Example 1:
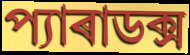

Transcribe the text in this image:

প্যাৰাডক্স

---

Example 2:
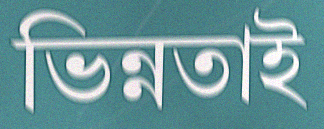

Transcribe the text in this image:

ভিন্নতাই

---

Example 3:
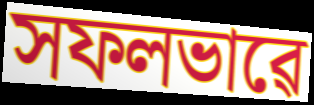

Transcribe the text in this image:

সফলভাৱে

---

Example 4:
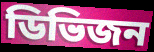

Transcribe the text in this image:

ডিভিজন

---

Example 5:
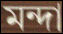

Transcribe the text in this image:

মন্দা